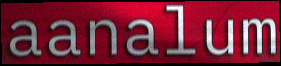
aanalum